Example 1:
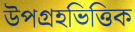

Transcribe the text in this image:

উপগ্রহভিত্তিক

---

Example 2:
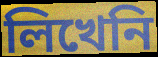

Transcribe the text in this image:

লিখেনি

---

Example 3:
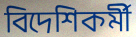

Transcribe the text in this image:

বিদেশিকর্মী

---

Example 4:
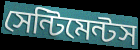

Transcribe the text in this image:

সেন্টিমেন্টস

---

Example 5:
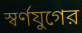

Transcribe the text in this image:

স্বর্ণযুগের